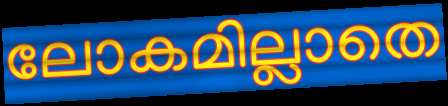
ലോകമില്ലാതെ